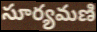
సూర్యమణి